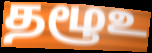
தழூஉ